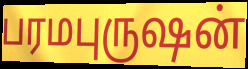
பரமபுருஷன்